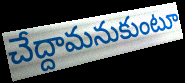
చేద్దామనుకుంటూ